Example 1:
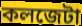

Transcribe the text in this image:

কলজেটা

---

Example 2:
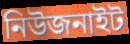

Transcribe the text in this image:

নিউজনাইট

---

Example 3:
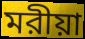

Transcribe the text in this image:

মরীয়া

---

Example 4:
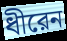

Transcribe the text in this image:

ধীরেন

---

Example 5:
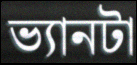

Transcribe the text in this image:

ভ্যানটা